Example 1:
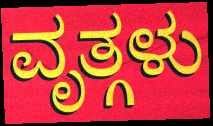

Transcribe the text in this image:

ವೃತ್ಗಳು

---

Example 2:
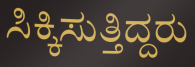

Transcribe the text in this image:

ಸಿಕ್ಕಿಸುತ್ತಿದ್ದರು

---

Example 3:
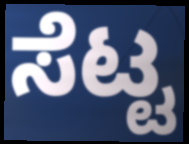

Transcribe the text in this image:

ಸೆಟ್ಟ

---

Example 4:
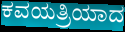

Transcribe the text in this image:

ಕವಯತ್ರಿಯಾದ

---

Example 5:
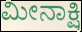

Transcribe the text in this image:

ಮೀನಾಕ್ಷಿ